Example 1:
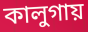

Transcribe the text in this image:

কালুগায়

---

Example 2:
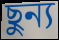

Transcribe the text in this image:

ছুন্য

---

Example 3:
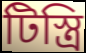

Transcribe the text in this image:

টিস্ত্রি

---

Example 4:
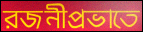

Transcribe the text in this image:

রজনীপ্রভাতে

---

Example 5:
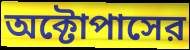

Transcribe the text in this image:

অক্টোপাসের